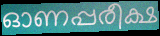
ഓണപ്പരീക്ഷ